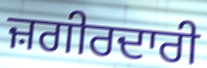
ਜ਼ਗੀਰਦਾਰੀ